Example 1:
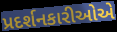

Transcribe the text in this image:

પ્રદર્શનકારીઓએ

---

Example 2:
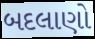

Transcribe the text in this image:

બદલાણો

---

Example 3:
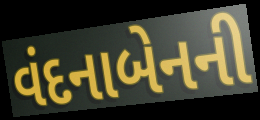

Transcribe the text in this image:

વંદનાબેનની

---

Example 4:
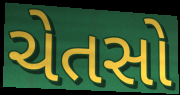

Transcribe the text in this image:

ચેતસો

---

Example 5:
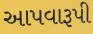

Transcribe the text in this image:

આપવારૂપી